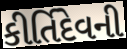
કીર્તિદેવની